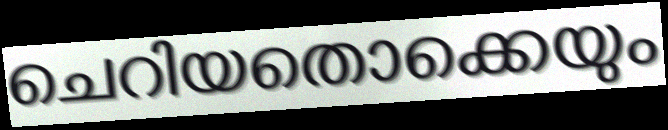
ചെറിയതൊക്കെയും